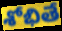
శోభితే